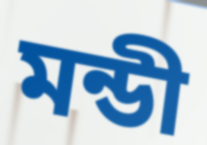
মন্ডী